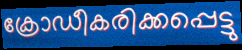
ക്രോഡീകരിക്കപ്പെട്ടു